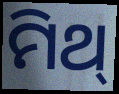
ମିଥ୍